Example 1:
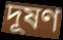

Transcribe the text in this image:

দূষণ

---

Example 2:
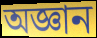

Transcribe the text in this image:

অজ্ঞান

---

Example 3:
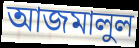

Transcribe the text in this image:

আজমালুল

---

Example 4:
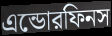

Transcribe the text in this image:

এন্ডোরফিনস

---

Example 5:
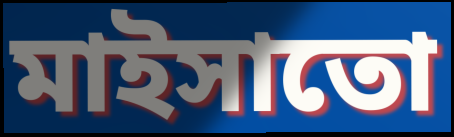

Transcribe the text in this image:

মাইসাতো